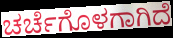
ಚರ್ಚೆಗೊಳಗಾಗಿದೆ